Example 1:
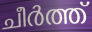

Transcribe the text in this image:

ചീർത്ത്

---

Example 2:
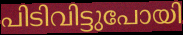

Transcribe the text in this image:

പിടിവിട്ടുപോയി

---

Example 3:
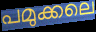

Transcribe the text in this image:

പമുക്കലെ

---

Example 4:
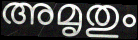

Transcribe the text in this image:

അമൃതും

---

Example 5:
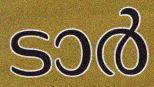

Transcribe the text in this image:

ടാർ